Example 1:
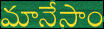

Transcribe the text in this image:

మానేసాం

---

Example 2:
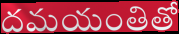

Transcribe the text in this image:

దమయంతితో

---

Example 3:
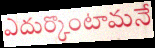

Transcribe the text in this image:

ఎదుర్కొంటామనే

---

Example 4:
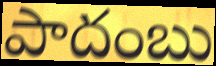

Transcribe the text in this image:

పాదంబు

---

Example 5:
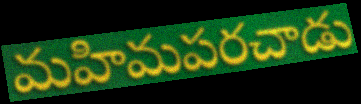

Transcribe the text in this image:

మహిమపరచాడు